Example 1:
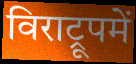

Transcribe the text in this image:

विराट्रूपमें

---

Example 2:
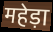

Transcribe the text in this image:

महेड़ा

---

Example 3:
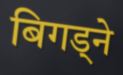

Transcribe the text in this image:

बिगड्ने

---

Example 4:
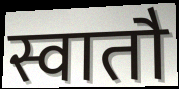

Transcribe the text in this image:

स्वातौ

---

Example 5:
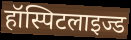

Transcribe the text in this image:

हॉस्पिटलाइज्ड